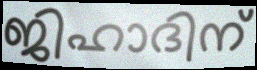
ജിഹാദിന്